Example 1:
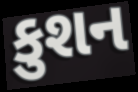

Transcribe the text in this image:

કુશન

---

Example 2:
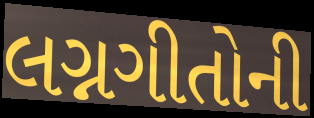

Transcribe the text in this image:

લગ્નગીતોની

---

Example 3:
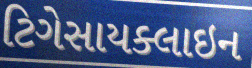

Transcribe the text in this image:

ટિગેસાયક્લાઇન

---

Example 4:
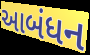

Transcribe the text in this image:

આબંધન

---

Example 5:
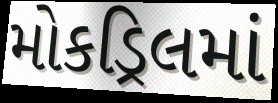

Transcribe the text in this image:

મોકડ્રિલમાં